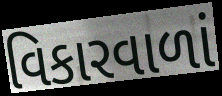
વિકારવાળાં